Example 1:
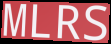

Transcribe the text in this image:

MLRS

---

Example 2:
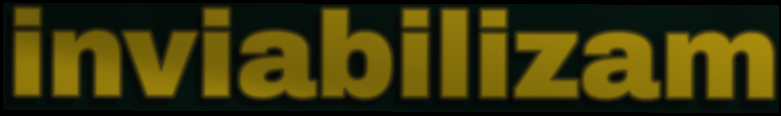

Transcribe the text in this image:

inviabilizam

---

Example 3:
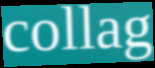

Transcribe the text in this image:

collag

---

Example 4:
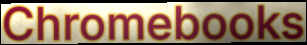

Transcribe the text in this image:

Chromebooks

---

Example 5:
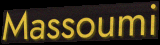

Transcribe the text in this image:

Massoumi